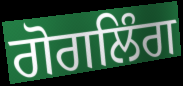
ਗੋਗਲਿੰਗ